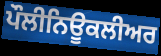
ਪੌਲੀਨਿਊਕਲੀਅਰ